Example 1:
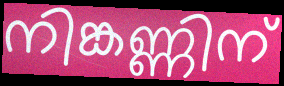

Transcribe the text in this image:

നിങ്കണ്ണിന്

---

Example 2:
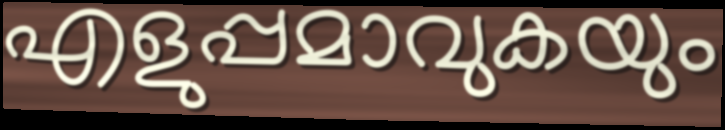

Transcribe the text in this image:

എളുപ്പമാവുകയും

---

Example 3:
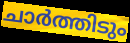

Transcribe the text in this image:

ചാർത്തിടും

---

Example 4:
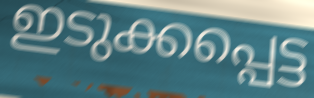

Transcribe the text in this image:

ഇടുക്കപ്പെട്ട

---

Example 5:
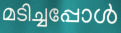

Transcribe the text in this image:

മടിച്ചപ്പോൾ